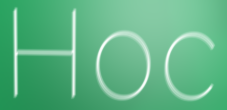
Hoc